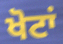
ਖੋਟਾਂ